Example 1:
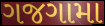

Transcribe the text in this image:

ગજગામા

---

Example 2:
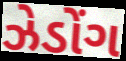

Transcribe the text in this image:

ઝેડોંગ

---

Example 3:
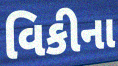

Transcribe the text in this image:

વિકીના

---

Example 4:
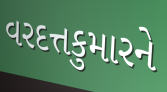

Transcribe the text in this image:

વરદત્તકુમારને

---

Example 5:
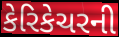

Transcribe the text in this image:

કેરિકેચરની